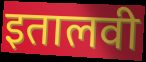
इतालवी